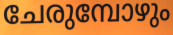
ചേരുമ്പോഴും